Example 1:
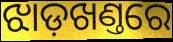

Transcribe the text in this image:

ଝାଡ଼ଖଣ୍ତରେ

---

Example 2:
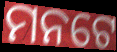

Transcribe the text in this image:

ମନଟେ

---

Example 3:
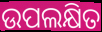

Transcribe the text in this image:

ଉପଲକ୍ଷିତ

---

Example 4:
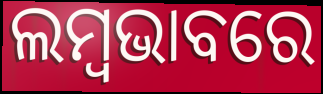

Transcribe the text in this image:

ଲମ୍ବଭାବରେ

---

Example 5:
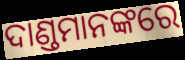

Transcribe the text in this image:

ଦାଣ୍ଡମାନଙ୍କରେ